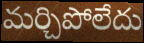
మర్చిపోలేదు